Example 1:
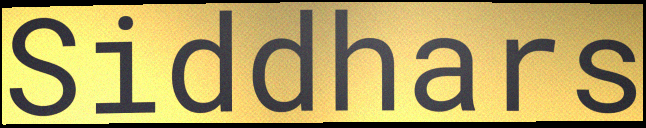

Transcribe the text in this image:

Siddhars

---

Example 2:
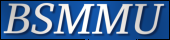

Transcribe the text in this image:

BSMMU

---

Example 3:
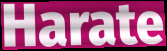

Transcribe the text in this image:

Harate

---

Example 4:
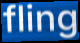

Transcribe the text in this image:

fling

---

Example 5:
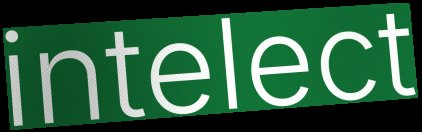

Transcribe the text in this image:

intelect